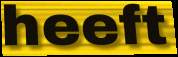
heeft